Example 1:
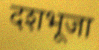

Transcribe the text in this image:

दशभूजा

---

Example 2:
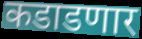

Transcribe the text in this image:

कडाडणार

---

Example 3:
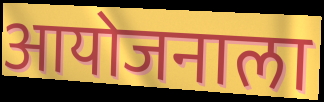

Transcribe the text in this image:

आयोजनाला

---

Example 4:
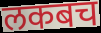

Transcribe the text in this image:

लकबच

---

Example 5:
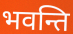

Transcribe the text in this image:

भवन्ति